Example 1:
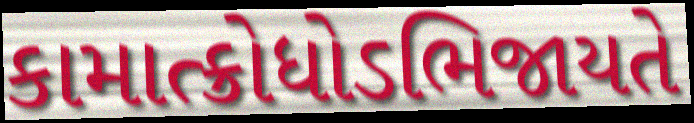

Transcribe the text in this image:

કામાત્ક્રોધોઽભિજાયતે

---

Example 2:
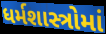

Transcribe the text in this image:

ધર્મશાસ્ત્રોમાં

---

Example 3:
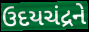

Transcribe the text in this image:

ઉદયચંદ્રને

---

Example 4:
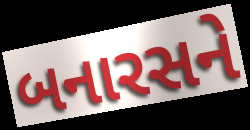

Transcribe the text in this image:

બનારસને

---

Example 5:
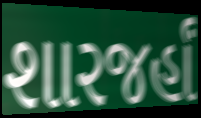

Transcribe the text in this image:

શારજર્હાં